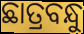
ଛାତ୍ରବନ୍ଧୁ